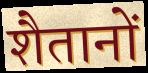
शैतानों